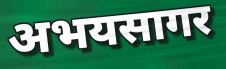
अभयसागर